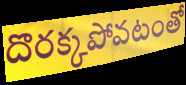
దొరక్కపోవటంతో